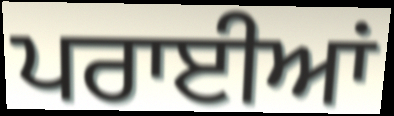
ਪਰਾਈਆਂ